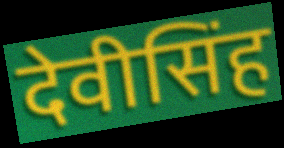
देवीसिंह